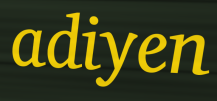
adiyen